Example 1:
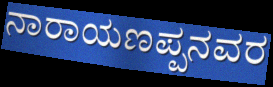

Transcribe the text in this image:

ನಾರಾಯಣಪ್ಪನವರ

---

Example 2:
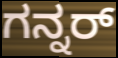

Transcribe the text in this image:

ಗನ್ನರ್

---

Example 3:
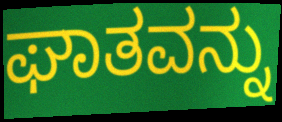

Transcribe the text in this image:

ಘಾತವನ್ನು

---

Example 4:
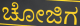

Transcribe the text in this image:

ಚೋಜಿಗ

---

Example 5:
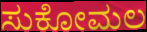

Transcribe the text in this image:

ಸುಕೋಮಲ